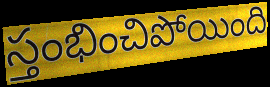
స్తంభించిపోయింది